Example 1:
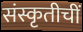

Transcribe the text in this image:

संस्कृतीचीं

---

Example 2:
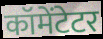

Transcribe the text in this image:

कॉमेंटेटर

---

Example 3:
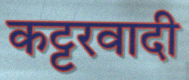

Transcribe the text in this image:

कट्टरवादी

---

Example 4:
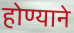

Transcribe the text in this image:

होण्याने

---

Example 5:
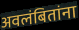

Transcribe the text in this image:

अवलंबितांना